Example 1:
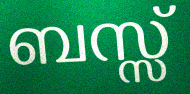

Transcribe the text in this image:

ബസ്സ്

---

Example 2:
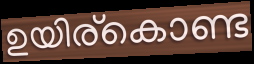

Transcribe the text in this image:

ഉയിര്കൊണ്ട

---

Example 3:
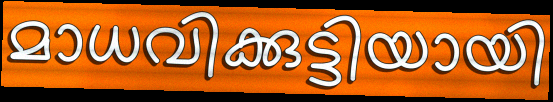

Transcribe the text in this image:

മാധവിക്കുട്ടിയായി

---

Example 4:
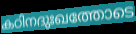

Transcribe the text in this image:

കഠിനദുഃഖത്തോടെ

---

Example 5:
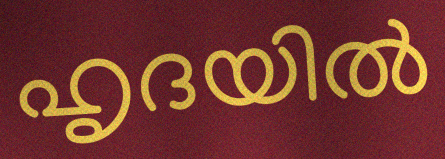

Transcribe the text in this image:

ഹൃദയിൽ